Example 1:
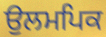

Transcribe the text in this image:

ਉਲਮਪਿਕ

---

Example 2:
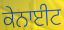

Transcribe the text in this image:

ਕੇਨਾਈਟ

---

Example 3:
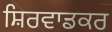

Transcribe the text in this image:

ਸ਼ਿਰਵਾਡਕਰ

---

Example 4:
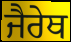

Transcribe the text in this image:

ਜੈਰੇਥ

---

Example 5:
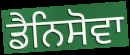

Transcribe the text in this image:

ਡੈਨਿਸੋਵਾ